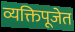
व्यक्तिपूजेत